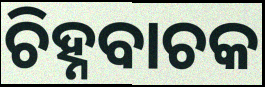
ଚିହ୍ନବାଚକ